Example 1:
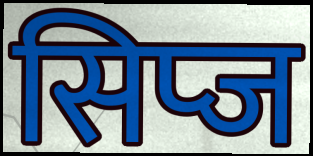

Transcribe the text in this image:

सिप्ज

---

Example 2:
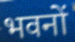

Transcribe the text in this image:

भवनों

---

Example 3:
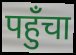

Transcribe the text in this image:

पहुँचा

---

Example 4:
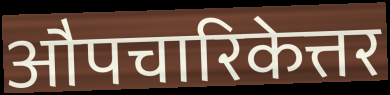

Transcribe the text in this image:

औपचारिकेत्तर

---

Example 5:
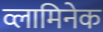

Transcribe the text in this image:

व्लामिनेक